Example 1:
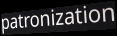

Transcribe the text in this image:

patronization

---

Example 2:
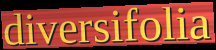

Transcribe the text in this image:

diversifolia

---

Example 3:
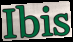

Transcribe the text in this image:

Ibis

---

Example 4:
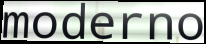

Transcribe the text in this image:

moderno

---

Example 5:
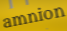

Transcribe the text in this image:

amnion